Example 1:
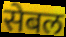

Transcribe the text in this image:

सेबल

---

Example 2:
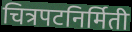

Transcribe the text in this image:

चित्रपटनिर्मिती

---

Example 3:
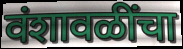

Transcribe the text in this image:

वंशावळींचा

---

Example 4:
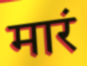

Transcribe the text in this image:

मारं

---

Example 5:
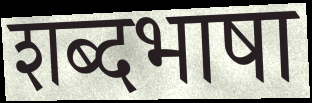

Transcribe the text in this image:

शब्दभाषा